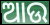
ଆଉ